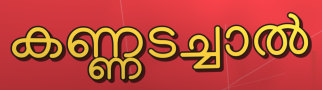
കണ്ണടച്ചാൽ